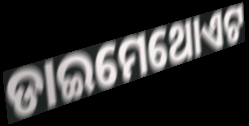
ଡାଇମେଥୋଏଟ